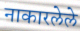
नाकारलेले